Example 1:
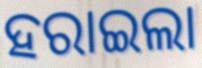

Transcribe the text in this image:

ହରାଇଲା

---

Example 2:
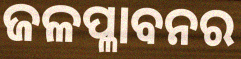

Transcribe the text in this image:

ଜଳପ୍ଳାବନର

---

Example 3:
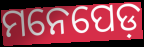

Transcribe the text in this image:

ମନେପେଡ଼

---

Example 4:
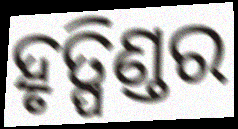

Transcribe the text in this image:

ହୃତ୍ପିଣ୍ଡର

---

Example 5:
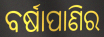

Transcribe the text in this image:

ବର୍ଷାପାଣିର